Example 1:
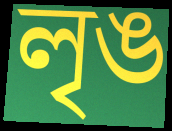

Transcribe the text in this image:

লৃঙ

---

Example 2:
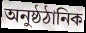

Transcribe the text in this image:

অনুষ্ঠঠানিক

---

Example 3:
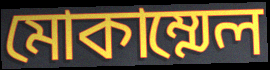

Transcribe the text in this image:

মোকাম্মেল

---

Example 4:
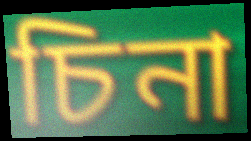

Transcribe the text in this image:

চিনা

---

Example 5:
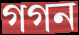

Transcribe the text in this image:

গগন